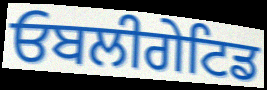
ਓਬਲੀਗੇਟਿਡ